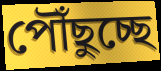
পৌঁছুচ্ছে